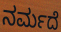
ನರ್ಮದೆ